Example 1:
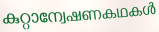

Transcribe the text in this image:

കുറ്റാന്വേഷണകഥകൾ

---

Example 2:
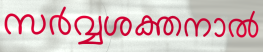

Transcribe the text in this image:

സർവ്വശക്തനാൽ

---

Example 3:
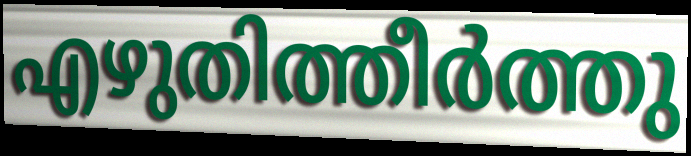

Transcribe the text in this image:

എഴുതിത്തീർത്തു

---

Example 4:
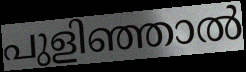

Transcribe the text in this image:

പുളിഞ്ഞാൽ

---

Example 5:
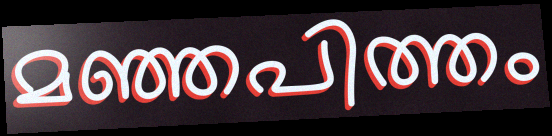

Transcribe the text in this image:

മഞ്ഞപിത്തം